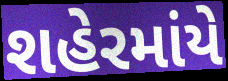
શહેરમાંયે